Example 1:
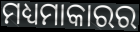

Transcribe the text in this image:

ମଧ୍ୟମାକାରର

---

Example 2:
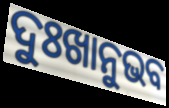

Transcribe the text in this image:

ଦୁଃଖାନୁଭବ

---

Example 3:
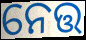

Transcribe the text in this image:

ନେତ୍ତ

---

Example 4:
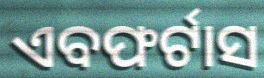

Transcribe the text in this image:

ଏବଫର୍ଟାସ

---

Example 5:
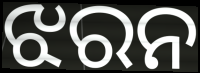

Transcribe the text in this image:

ଝରନ